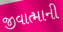
જીવાત્માની